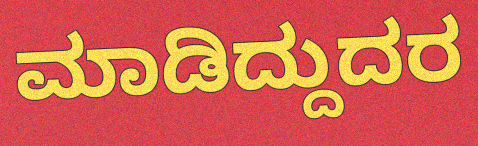
ಮಾಡಿದ್ದುದರ